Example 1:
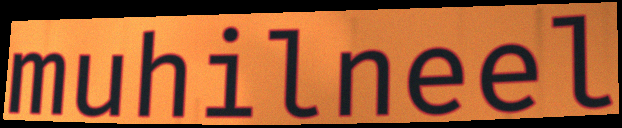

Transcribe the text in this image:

muhilneel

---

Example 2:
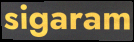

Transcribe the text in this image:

sigaram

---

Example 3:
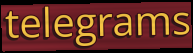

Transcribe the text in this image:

telegrams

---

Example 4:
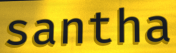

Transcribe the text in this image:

santha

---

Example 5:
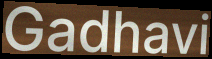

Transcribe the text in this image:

Gadhavi